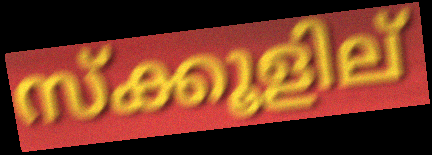
സ്ക്കൂളില്